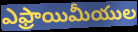
ఎఫ్రాయిమీయుల